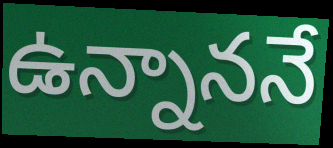
ఉన్నాననే